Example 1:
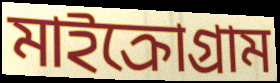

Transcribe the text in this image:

মাইক্রোগ্রাম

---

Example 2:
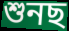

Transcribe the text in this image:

শুনছ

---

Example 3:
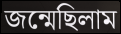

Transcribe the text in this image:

জন্মেছিলাম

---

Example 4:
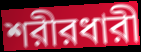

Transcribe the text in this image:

শরীরধারী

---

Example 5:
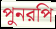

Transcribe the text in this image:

পুনরপি